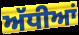
ਅੱਧੀਆਂ